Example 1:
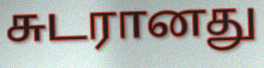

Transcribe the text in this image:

சுடரானது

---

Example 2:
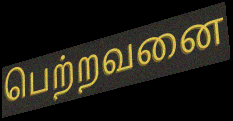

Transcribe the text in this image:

பெற்றவனை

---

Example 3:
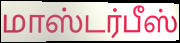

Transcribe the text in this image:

மாஸ்டர்பீஸ்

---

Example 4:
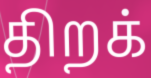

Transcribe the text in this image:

திறக்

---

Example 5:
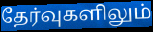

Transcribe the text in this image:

தேர்வுகளிலும்